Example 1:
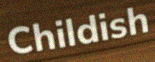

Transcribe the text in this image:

Childish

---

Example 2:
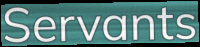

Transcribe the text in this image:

Servants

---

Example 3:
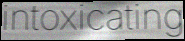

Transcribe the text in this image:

intoxicating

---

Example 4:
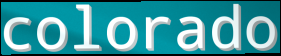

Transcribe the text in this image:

colorado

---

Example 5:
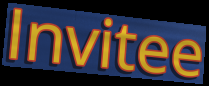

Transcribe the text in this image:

Invitee